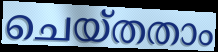
ചെയ്തതാം